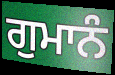
ਗੁਮਾਨੰ